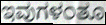
ಇವುಗಳಂತೂ